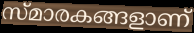
സ്മാരകങ്ങളാണ്